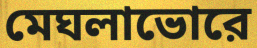
মেঘলাভোরে